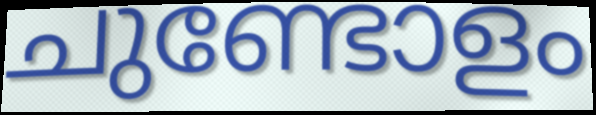
ചുണ്ടോളം